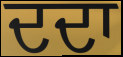
ਦਦਾ